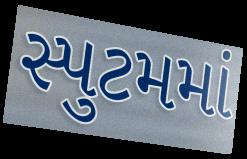
સ્પુટમમાં